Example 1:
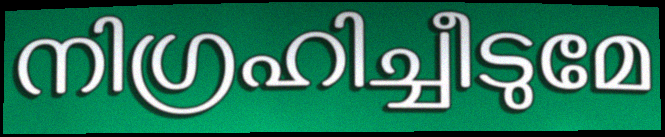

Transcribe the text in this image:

നിഗ്രഹിച്ചീടുമേ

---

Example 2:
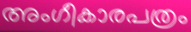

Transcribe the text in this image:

അംഗീകാരപത്രം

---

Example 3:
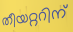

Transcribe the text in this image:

തീയറ്ററിന്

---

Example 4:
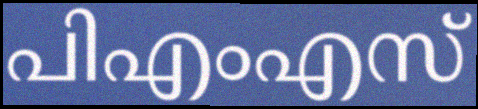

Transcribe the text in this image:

പിഎംഎസ്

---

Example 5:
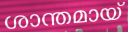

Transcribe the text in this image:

ശാന്തമായ്